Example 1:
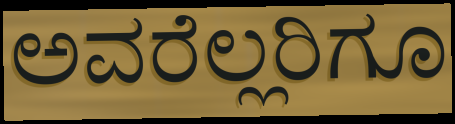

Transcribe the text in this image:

ಅವರೆಲ್ಲರಿಗೂ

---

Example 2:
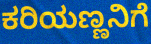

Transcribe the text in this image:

ಕರಿಯಣ್ಣನಿಗೆ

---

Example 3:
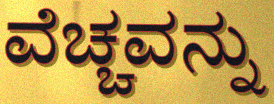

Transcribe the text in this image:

ವೆಚ್ಚವನ್ನು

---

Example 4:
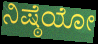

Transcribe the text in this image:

ನಿಷ್ಠೆಯೋ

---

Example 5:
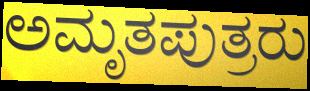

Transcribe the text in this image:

ಅಮೃತಪುತ್ರರು